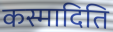
कस्मादिति